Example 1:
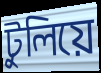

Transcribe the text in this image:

টুলিয়ে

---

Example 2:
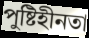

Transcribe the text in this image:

পুষ্টিহীনতা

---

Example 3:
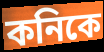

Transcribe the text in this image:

কনিকে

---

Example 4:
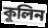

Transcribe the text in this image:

কুলিন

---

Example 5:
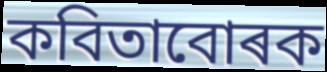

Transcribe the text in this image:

কবিতাবোৰক